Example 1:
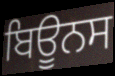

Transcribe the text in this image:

ਬਿਊਨਸ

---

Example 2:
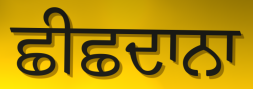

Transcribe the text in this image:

ਛੀਛਦਾਨਾ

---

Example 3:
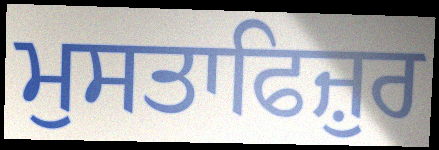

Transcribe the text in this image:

ਮੁਸਤਾਫਿਜ਼ੁਰ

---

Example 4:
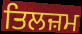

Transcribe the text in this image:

ਤਿਲਜ਼ਮ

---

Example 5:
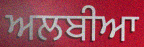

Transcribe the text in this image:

ਅਲਬੀਆ